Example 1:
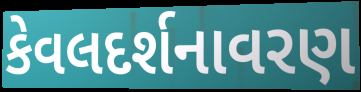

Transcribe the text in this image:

કેવલદર્શનાવરણ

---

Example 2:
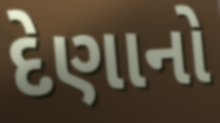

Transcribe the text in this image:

દેણાનો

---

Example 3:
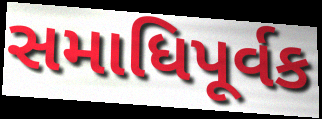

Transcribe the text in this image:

સમાધિપૂર્વક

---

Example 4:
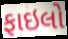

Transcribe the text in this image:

ફાઇલો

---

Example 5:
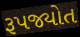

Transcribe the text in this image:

રૂપજ્યોત